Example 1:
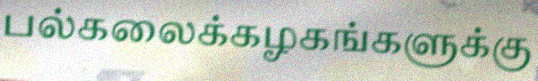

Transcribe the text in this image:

பல்கலைக்கழகங்களுக்கு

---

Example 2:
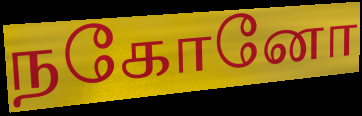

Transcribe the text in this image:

நகோனோ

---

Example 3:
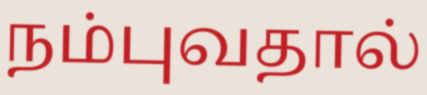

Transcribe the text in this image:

நம்புவதால்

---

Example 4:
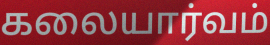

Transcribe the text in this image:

கலையார்வம்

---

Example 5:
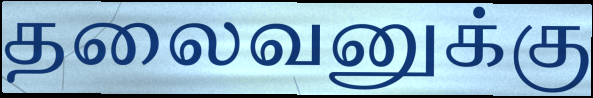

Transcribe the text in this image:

தலைவனுக்கு